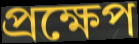
প্ৰক্ষেপ